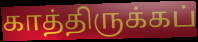
காத்திருக்கப்